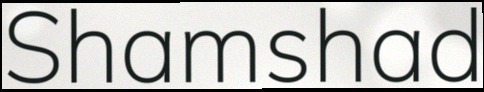
Shamshad